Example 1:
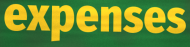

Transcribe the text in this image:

expenses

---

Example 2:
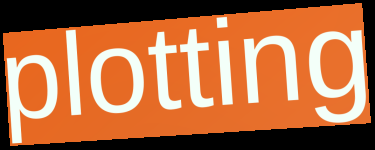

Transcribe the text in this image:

plotting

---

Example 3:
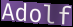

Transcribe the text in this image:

Adolf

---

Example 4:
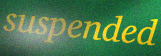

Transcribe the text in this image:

suspended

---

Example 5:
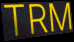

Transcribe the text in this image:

TRM